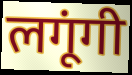
लगूंगी